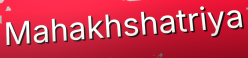
Mahakhshatriya